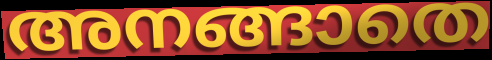
അനങ്ങാതെ